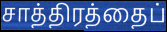
சாத்திரத்தைப்